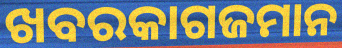
ଖବରକାଗଜମାନ